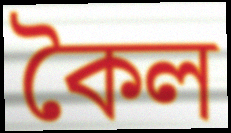
কৈল